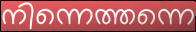
നിന്നെത്തന്നെ